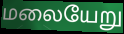
மலையேறு